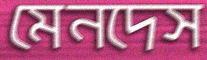
মেনদেস